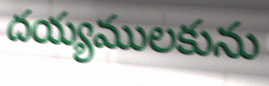
దయ్యములకును